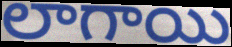
లాగాయి